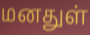
மனதுள்